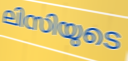
ലിസിയുടെ